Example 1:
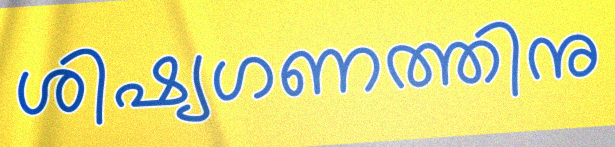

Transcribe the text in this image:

ശിഷ്യഗണത്തിനു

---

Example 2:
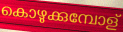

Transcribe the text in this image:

കൊഴുക്കുമ്പോള്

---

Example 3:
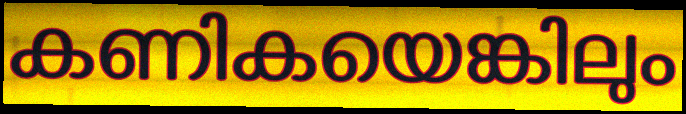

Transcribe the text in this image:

കണികയെങ്കിലും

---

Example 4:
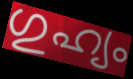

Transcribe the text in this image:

ഗുഹ്യം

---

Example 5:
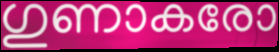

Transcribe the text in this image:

ഗുണാകരോ